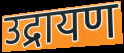
उद्रायण